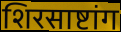
शिरसाष्टांग